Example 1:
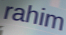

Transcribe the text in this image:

rahim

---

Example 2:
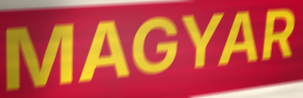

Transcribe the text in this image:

MAGYAR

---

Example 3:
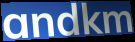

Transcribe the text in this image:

andkm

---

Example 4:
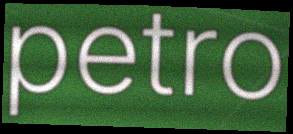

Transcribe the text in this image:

petro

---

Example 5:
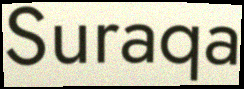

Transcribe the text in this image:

Suraqa